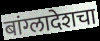
बांग्लादेशचा